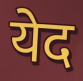
येद